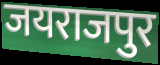
जयराजपुर